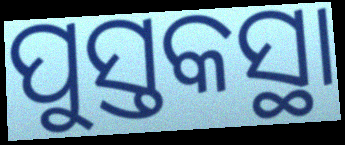
ପୁସ୍ତକସ୍ଥା